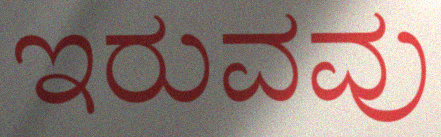
ಇರುವವು